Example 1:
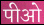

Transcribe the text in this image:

पीओ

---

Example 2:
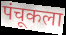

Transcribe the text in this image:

पंचूकला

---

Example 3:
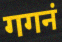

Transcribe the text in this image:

गगनं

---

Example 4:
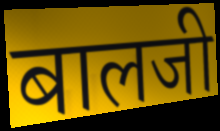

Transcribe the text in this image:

बालजी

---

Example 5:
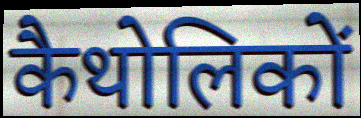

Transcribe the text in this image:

कैथोलिकों